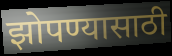
झोपण्यासाठी